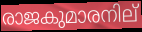
രാജകുമാരനില്